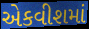
એકવીશમાં